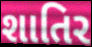
શાતિર